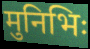
मुनिभिः